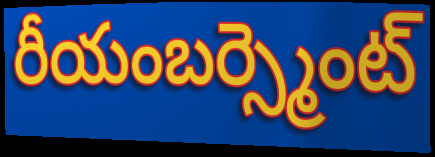
రీయంబర్స్మెంట్